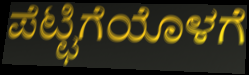
ಪೆಟ್ಟಿಗೆಯೊಳಗೆ